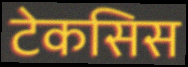
टेकसिस